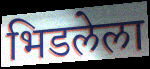
भिडलेला